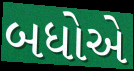
બધોએ